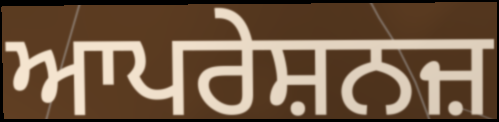
ਆਪਰੇਸ਼ਨਜ਼